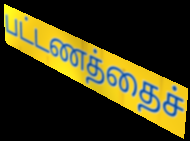
பட்டணத்தைச்